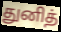
துனித்